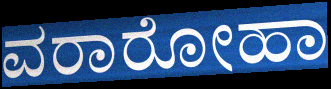
ವರಾರೋಹಾ